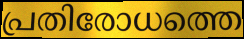
പ്രതിരോധത്തെ